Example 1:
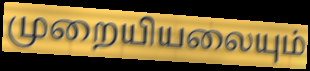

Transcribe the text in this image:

முறையியலையும்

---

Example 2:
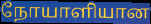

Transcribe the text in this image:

நோயாளியான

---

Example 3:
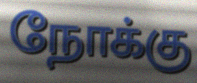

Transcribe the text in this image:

நோக்கு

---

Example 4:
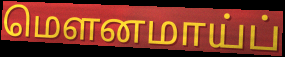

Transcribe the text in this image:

மௌனமாய்ப்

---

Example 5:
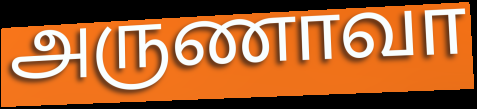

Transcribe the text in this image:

அருணாவா